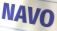
NAVO